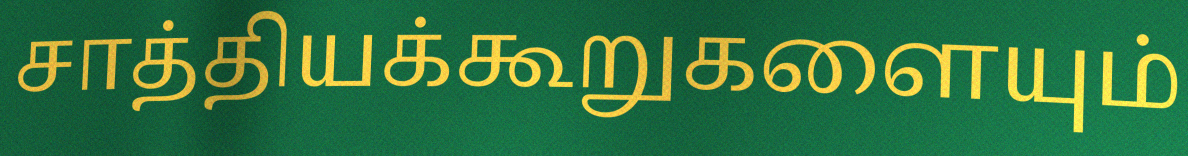
சாத்தியக்கூறுகளையும்